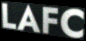
LAFC